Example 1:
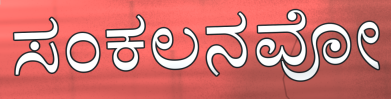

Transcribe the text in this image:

ಸಂಕಲನವೋ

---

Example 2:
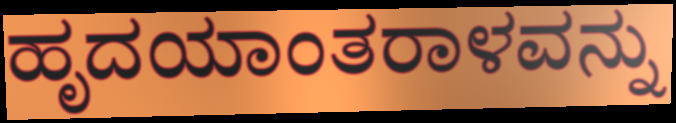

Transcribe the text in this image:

ಹೃದಯಾಂತರಾಳವನ್ನು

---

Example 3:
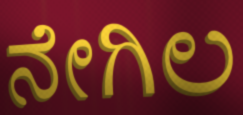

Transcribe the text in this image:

ನೇಗಿಲ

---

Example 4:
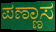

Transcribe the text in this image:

ಪಣ್ಣಾಸ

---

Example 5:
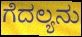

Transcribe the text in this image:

ಗೆದಲ್ಯನು